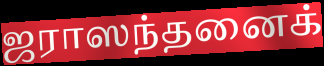
ஜராஸந்தனைக்